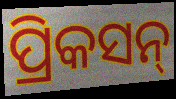
ପ୍ରିକସନ୍